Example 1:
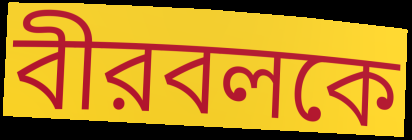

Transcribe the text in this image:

বীরবলকে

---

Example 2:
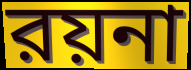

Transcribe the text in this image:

রয়না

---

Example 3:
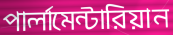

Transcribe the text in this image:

পার্লামেন্টারিয়ান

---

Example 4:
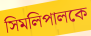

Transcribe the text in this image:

সিমলিপালকে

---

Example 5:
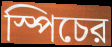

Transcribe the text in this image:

স্পিচের